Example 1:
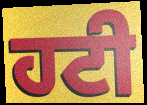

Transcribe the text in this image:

ਹਟੀ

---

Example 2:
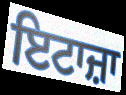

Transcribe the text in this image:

ਇਟਾਜ਼ਾ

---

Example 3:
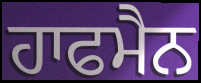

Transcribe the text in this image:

ਹਾਫਮੈਨ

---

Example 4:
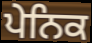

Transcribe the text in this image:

ਪੇਨਿਕ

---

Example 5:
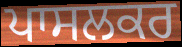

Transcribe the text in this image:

ਪਾਸਲਕਰ